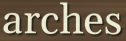
arches